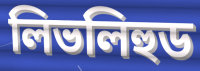
লিভলিহুড